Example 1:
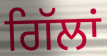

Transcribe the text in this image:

ਗਿੱਲਾਂ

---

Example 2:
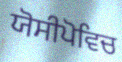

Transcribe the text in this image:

ਯੋਸੀਪੋਵਿਚ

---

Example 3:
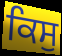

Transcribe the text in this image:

ਕਿਸੁ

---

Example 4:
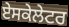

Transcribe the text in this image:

ਏਸਕੇਲੇਟਰ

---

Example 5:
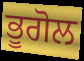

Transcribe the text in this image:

ਭੂਗੋਲ